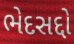
ભેદસદ્દો